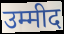
उम्मीद